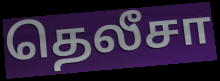
தெலீசா